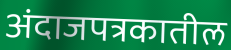
अंदाजपत्रकातील